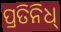
ପ୍ରତିନିଧ୍